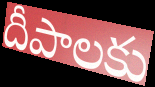
దీపాలకు